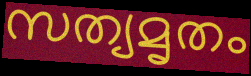
സത്യമൃതം